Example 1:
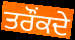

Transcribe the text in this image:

ਤਰੌਂਕਦੇ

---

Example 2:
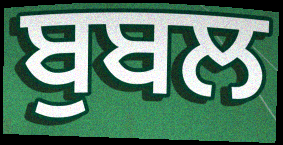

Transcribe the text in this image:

ਬੁਬਲ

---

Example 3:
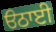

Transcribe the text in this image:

ੳਠਾਈ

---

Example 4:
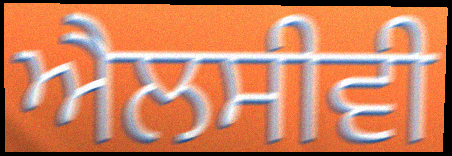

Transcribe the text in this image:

ਐਲਸੀਵੀ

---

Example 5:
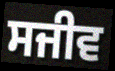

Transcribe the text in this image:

ਸਜੀਵ